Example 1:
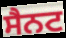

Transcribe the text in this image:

ਸੈਨਟ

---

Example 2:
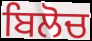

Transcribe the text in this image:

ਬਿਲੋਚ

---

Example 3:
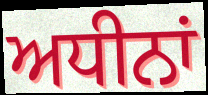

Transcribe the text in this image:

ਅਧੀਨਾਂ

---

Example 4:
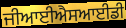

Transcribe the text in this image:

ਜੀਆਈਐਸਆਈਡੀ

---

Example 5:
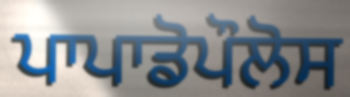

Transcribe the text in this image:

ਪਾਪਾਡੋਪੌਲੋਸ